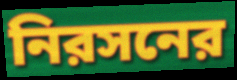
নিরসনের